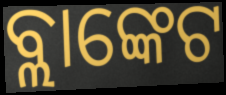
ବ୍ଲାଙ୍କେଟ